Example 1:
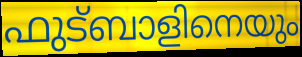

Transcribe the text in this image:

ഫുട്ബാളിനെയും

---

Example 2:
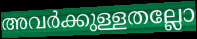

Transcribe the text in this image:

അവർക്കുള്ളതല്ലോ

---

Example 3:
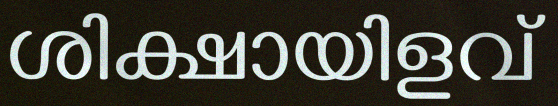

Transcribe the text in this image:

ശിക്ഷായിളവ്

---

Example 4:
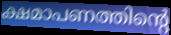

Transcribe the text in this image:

ക്ഷമാപണത്തിന്റെ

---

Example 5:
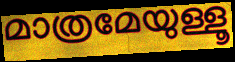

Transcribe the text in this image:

മാത്രമേയുള്ളൂ